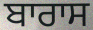
ਬਾਰਾਸ